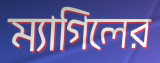
ম্যাগিলের